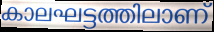
കാലഘട്ടത്തിലാണ്